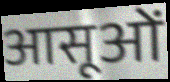
आसूओं